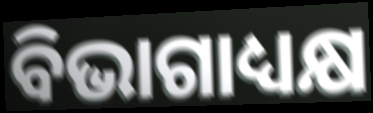
ବିଭାଗାଧ୍ୟକ୍ଷ